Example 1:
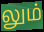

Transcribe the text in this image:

லும்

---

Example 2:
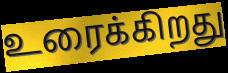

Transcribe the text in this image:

உரைக்கிறது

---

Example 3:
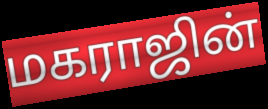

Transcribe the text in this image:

மகராஜின்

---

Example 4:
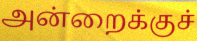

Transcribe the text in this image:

அன்றைக்குச்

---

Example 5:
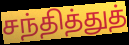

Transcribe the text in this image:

சந்தித்துத்